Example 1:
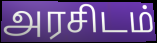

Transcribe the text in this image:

அரசிடம்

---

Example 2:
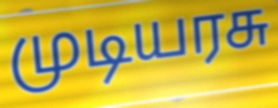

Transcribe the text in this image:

முடியரசு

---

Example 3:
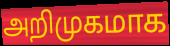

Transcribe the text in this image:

அறிமுகமாக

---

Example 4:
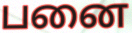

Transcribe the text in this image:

பனை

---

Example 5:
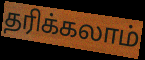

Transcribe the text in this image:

தரிக்கலாம்